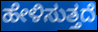
ಹೇಳಿಸುತ್ತದೆ